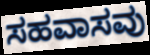
ಸಹವಾಸವು